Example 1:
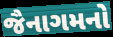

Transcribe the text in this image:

જૈનાગમનો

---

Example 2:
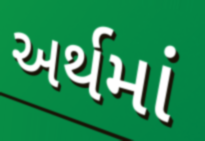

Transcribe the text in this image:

અર્થમાં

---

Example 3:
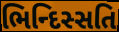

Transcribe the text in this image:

ભિન્દિસ્સતિ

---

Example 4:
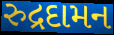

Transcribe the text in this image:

રુદ્રદામન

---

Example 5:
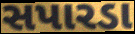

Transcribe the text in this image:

સપારડા